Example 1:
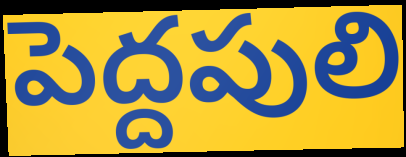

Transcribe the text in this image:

పెద్దపులి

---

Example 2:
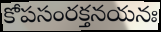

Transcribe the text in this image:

కోపసంరక్తనయనః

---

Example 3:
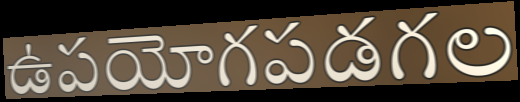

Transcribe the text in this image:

ఉపయోగపడగల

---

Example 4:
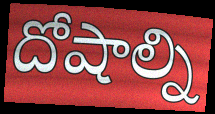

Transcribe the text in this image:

దోషాల్ని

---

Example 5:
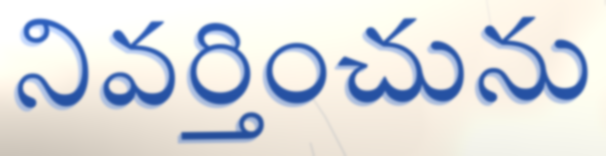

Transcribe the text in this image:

నివర్తించును